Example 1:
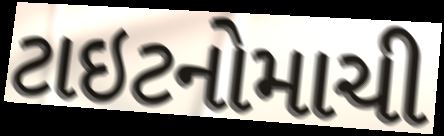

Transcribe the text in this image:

ટાઇટનોમાચી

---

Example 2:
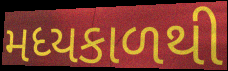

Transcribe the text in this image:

મધ્યકાળથી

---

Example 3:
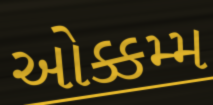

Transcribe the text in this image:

ઓક્કમ્મ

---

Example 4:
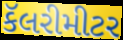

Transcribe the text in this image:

કૅલરીમીટર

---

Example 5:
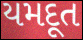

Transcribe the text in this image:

યમદૂત